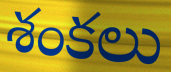
శంకలు